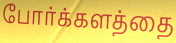
போர்க்களத்தை